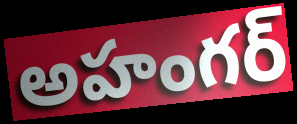
అహంగర్